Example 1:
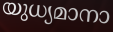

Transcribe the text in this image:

യുധ്യമാനാ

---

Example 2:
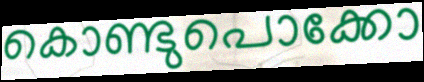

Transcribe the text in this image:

കൊണ്ടുപൊക്കോ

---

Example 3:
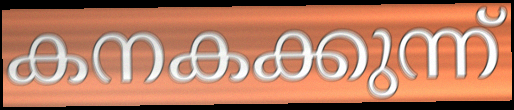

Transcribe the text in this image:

കനകക്കുന്ന്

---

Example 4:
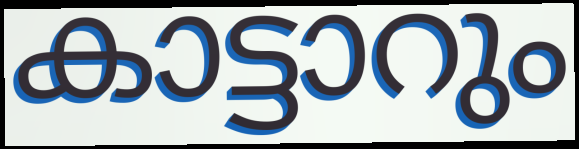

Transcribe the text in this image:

കാട്ടാറും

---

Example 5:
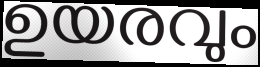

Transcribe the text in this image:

ഉയരവും